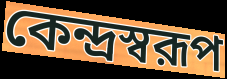
কেন্দ্রস্বরূপ